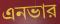
এনভার